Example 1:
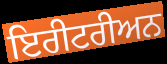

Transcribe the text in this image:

ਇਰੀਟਰੀਅਨ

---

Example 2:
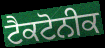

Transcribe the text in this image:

ਟੈਕਟੋਨੀਕ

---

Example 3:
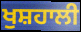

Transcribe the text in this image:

ਖੁਸ਼ਹਾਲੀ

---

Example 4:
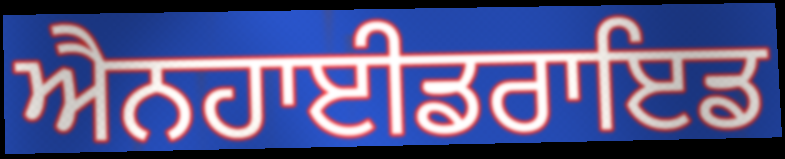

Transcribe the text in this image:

ਐਨਹਾਈਡਰਾਇਡ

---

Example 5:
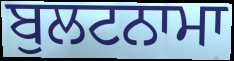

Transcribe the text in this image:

ਬੁਲਟਨਾਮਾ